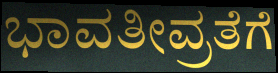
ಭಾವತೀವ್ರತೆಗೆ